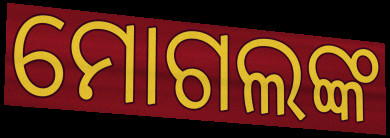
ମୋଗଲଙ୍କ